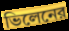
ভিলেনের